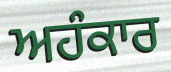
ਅਹੰਕਾਰ